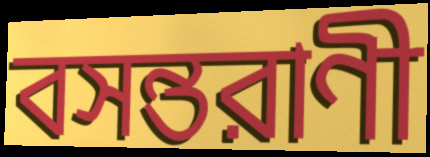
বসন্তরাণী